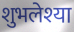
शुभलेश्या